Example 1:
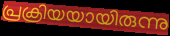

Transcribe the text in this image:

പ്രക്രിയയായിരുന്നു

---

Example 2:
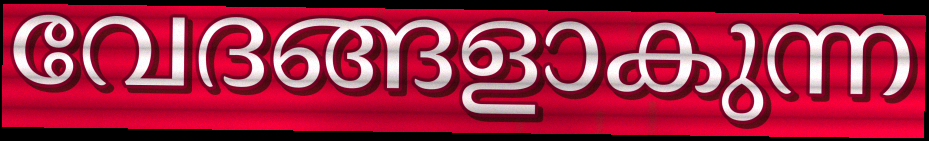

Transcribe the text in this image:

വേദങ്ങളാകുന്ന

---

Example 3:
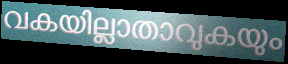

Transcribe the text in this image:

വകയില്ലാതാവുകയും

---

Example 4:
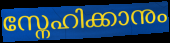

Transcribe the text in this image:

സ്നേഹിക്കാനും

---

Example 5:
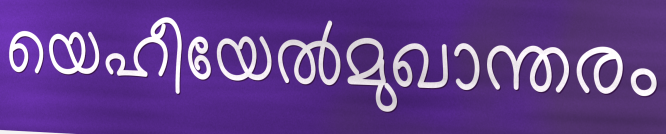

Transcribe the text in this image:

യെഹീയേൽമുഖാന്തരം